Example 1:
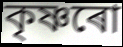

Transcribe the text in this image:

কৃষ্ণৰো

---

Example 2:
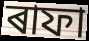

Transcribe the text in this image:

ৰাফা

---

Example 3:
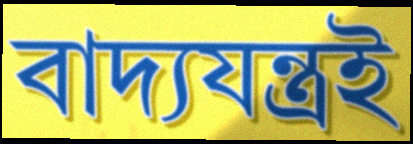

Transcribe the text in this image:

বাদ্যযন্ত্ৰই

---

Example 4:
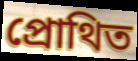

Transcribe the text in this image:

প্ৰোথিত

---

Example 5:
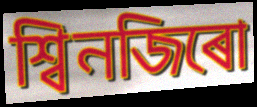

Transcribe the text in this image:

শ্বিনজিৰো